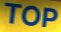
TOP